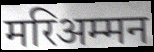
मरिअम्मन